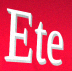
Ete